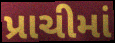
પ્રાચીમાં